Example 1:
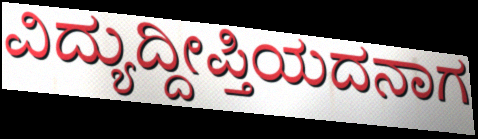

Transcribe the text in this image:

ವಿದ್ಯುದ್ದೀಪ್ತಿಯದನಾಗ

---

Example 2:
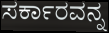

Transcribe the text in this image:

ಸರ್ಕಾರವನ್ನ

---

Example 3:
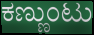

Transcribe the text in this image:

ಕಣ್ಣುಂಟು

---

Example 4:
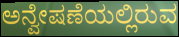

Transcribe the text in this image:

ಅನ್ವೇಷಣೆಯಲ್ಲಿರುವ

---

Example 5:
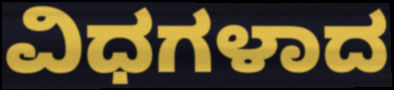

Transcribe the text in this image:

ವಿಧಗಳಾದ